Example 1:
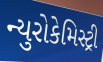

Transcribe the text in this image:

ન્યુરોકેમિસ્ટ્રી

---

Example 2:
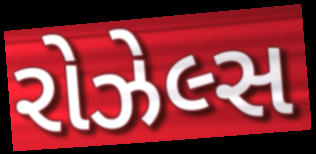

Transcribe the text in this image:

રોઝેલ્સ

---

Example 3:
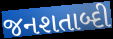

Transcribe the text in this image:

જનશતાબ્દી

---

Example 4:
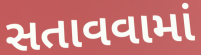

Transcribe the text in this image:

સતાવવામાં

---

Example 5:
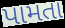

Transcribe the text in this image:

પામતા